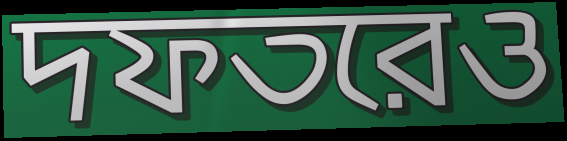
দফতরেও